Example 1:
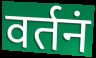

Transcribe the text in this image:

वर्तनं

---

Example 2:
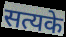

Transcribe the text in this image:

सत्यके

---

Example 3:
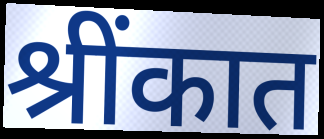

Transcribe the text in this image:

श्रींकात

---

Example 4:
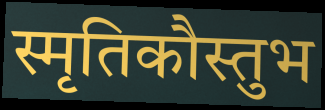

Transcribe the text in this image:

स्मृतिकौस्तुभ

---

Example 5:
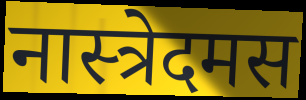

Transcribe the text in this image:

नास्त्रेदमस